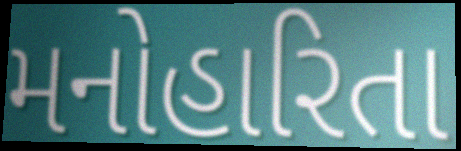
મનોહારિતા